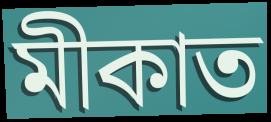
মীকাত